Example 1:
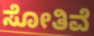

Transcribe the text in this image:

ಸೋತಿವೆ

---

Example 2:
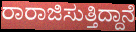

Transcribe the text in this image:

ರಾರಾಜಿಸುತ್ತಿದ್ದಾನೆ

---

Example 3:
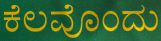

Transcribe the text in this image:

ಕೆಲವೊಂದು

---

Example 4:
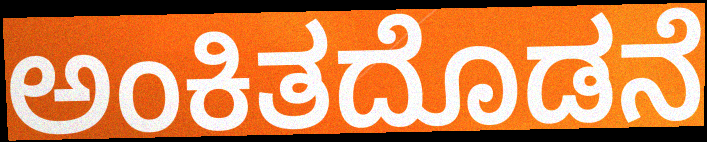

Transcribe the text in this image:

ಅಂಕಿತದೊಡನೆ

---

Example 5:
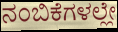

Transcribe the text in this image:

ನಂಬಿಕೆಗಳಲ್ಲೇ